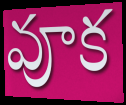
వూక